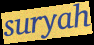
suryah